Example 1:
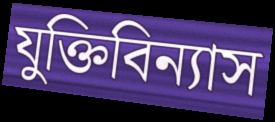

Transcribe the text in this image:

যুক্তিবিন্যাস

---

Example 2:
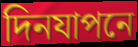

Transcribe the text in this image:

দিনযাপনে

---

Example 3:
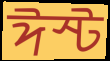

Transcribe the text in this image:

ঈস্ট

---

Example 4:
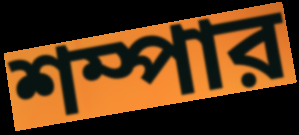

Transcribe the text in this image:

শম্পার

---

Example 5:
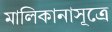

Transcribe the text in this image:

মালিকানাসূত্রে